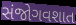
સંજોગવશાત